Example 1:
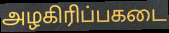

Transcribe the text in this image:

அழகிரிப்பகடை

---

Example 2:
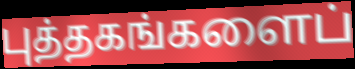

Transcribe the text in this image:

புத்தகங்களைப்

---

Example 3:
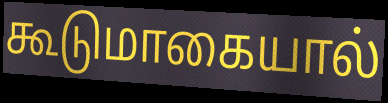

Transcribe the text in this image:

கூடுமாகையால்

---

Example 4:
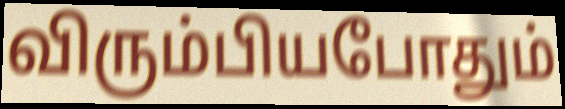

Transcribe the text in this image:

விரும்பியபோதும்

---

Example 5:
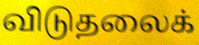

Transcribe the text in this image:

விடுதலைக்